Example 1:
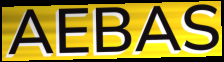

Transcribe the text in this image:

AEBAS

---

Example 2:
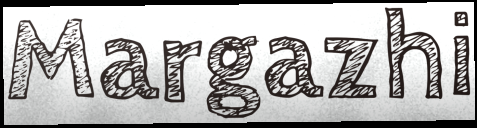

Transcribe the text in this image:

Margazhi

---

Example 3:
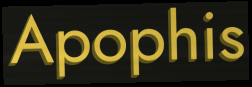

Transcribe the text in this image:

Apophis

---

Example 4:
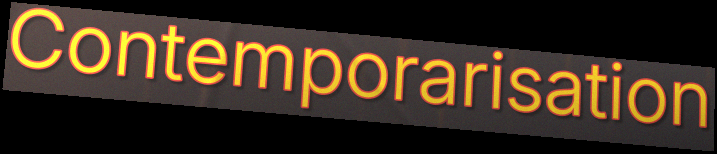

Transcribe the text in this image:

Contemporarisation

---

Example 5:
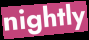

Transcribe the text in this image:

nightly